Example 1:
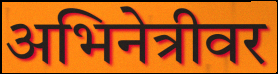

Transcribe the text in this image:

अभिनेत्रीवर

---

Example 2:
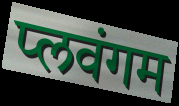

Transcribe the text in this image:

प्लवंगम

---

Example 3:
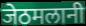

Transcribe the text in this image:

जेठमलानी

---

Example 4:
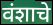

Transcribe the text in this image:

वंशाचे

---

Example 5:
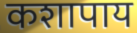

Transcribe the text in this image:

कशापाय